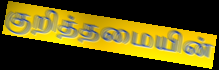
குறித்தமையின்